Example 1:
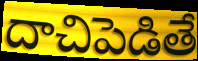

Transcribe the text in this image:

దాచిపెడితే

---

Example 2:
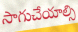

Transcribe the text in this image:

సాగుచేయాల్సి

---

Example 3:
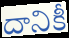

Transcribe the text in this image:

దానికీ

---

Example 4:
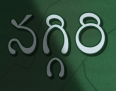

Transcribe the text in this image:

నగ్గిరి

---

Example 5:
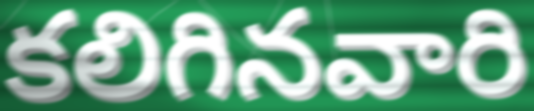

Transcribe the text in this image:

కలిగినవారి